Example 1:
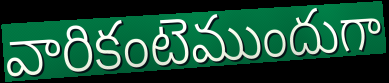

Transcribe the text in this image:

వారికంటెముందుగా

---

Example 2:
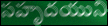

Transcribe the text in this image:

సహృదయుని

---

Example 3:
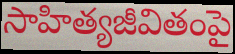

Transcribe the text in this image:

సాహిత్యజీవితంపై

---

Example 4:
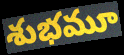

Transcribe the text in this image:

శుభమూ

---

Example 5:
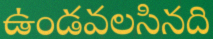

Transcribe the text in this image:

ఉండవలసినది